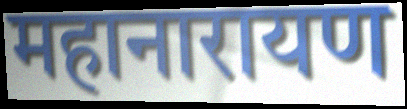
महानारायण